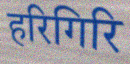
हरिगिरि